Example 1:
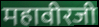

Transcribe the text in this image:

महावीरजी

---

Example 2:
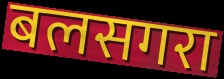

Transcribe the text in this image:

बलसगरा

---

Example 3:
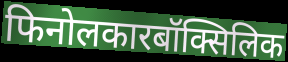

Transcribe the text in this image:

फिनोलकारबॉक्सिलिक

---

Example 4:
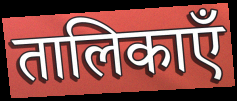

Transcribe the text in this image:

तालिकाएँ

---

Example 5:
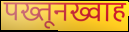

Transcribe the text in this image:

पख्तूनख्वाह